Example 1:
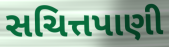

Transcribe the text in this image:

સચિત્તપાણી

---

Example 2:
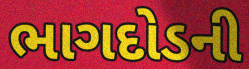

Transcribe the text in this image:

ભાગદોડની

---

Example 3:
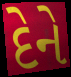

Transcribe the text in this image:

દેને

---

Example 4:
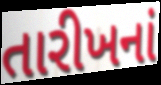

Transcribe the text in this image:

તારીખનાં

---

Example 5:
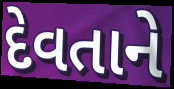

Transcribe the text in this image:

દેવતાને